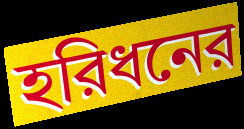
হরিধনের